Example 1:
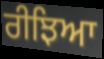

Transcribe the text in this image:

ਰੀਝਿਆ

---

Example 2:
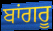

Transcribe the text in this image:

ਬਾਂਗਰੂ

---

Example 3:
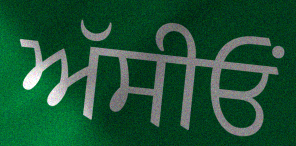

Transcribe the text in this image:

ਅੱਸੀਓਂ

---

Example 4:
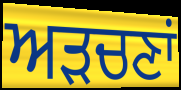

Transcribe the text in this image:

ਅੜਚਣਾਂ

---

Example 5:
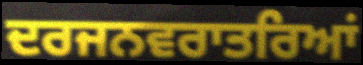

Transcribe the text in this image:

ਦਰਜਨਵਰਾਤਰਿਆਂ